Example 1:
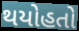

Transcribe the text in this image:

થયોહતો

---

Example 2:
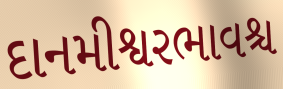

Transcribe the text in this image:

દાનમીશ્વરભાવશ્ચ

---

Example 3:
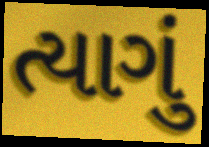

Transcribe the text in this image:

ત્યાગું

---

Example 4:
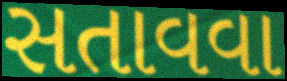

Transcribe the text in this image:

સતાવવા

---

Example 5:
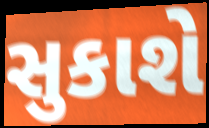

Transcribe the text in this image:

સુકાશે